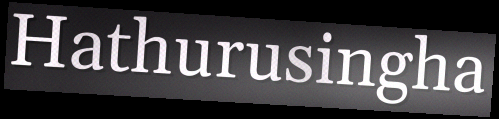
Hathurusingha